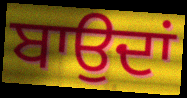
ਬਾਉਦਾਂ